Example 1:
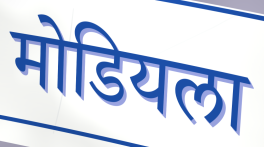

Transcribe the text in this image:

मोडियला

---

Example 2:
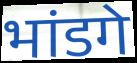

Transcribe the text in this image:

भांडगे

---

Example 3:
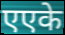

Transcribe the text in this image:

एएके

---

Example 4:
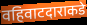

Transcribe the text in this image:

वहिवाटदाराकडे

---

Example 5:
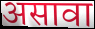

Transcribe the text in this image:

असावा